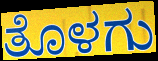
ತೊಳಗು